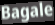
Bagale